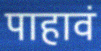
पाहावं